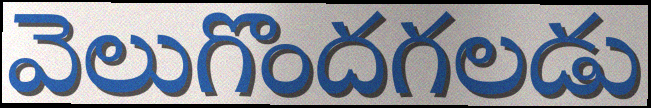
వెలుగొందగలడు